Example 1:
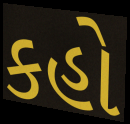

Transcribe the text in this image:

કહો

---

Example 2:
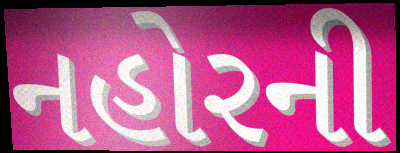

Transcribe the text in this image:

નહોરની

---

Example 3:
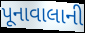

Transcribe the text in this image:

પૂનાવાલાની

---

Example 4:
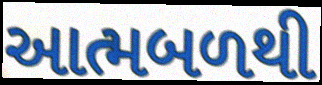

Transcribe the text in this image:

આત્મબળથી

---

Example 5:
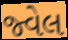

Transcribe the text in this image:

જ્વેલ